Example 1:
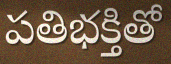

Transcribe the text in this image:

పతిభక్తితో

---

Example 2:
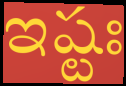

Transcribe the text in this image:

ఇష్టః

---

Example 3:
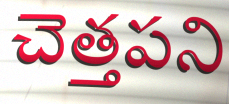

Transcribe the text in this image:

చెత్తపని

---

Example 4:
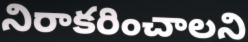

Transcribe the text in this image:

నిరాకరించాలని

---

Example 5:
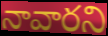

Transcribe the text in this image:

నావారని